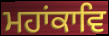
ਮਹਾਂਕਾਵਿ